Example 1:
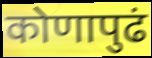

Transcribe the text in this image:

कोणापुढं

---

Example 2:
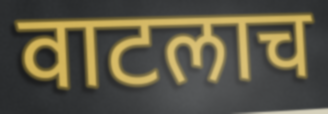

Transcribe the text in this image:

वाटलाच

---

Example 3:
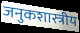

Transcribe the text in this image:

जनुकशास्त्रीय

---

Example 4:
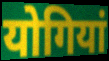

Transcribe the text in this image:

योगियां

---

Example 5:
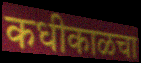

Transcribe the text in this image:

कधीकाळचा